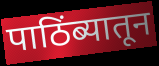
पाठिंब्यातून